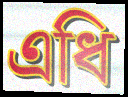
এধি